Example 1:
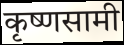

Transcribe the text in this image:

कृष्णसामी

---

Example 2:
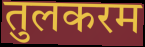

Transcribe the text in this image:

तुलकरम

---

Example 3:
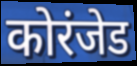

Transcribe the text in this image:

कोरंजेड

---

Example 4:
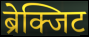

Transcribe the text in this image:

ब्रेक्जिट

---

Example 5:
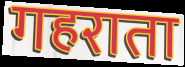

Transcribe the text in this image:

गहराता